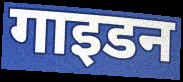
गाइडन